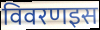
विवरणइस